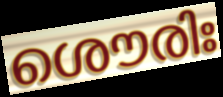
ശൌരിഃ